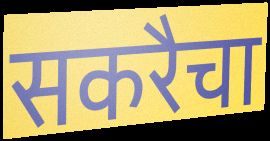
सकरैचा